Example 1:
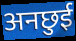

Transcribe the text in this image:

अनछुई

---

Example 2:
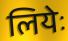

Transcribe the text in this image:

लियेः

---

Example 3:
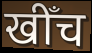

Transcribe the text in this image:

खीँच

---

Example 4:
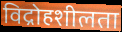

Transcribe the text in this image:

विद्रोहशीलता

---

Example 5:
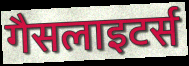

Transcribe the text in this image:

गैसलाइटर्स